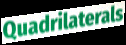
Quadrilaterals